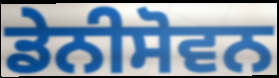
ਡੇਨੀਸੋਵਨ